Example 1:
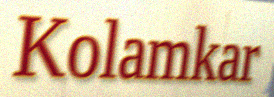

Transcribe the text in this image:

Kolamkar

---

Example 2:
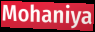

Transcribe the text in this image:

Mohaniya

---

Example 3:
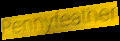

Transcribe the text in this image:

Pennyfeather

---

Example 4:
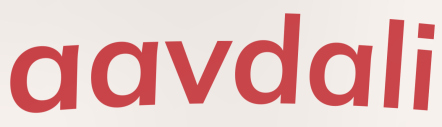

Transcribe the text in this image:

aavdali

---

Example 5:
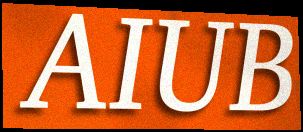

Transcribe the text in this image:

AIUB